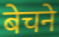
बेचने